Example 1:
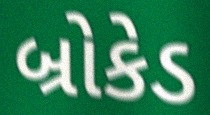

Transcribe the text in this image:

બ્રોકેડ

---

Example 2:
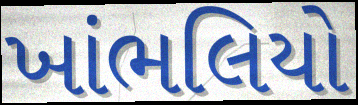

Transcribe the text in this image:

ખાંભલિયો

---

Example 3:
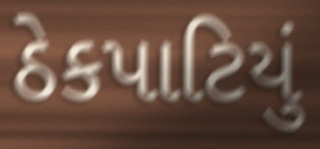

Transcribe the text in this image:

ઠેકપાટિયું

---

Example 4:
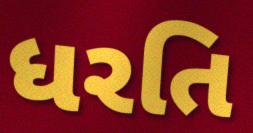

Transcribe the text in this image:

ધરતિ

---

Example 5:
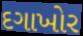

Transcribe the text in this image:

દગાખોર